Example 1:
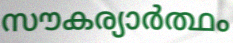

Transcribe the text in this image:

സൗകര്യാർത്ഥം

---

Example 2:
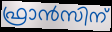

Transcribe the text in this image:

ഫ്രാൻസിന്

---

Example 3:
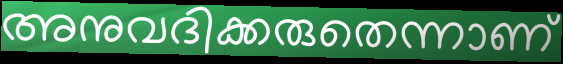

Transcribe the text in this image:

അനുവദിക്കരുതെന്നാണ്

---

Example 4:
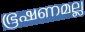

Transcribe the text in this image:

ഭൂഷണമല്ല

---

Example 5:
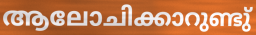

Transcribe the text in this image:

ആലോചിക്കാറുണ്ടു്